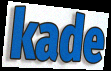
kade